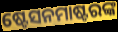
ଷ୍ଟେସନମାଷ୍ଟରଙ୍କ